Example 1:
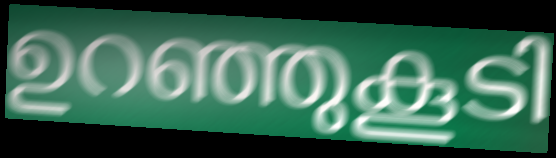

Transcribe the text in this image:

ഉറഞ്ഞുകൂടി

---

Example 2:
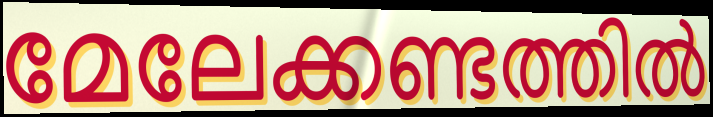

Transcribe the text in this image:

മേലേക്കണ്ടത്തിൽ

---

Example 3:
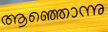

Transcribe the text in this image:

ആഞ്ഞൊന്നു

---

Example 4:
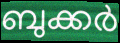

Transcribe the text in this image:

ബുക്കർ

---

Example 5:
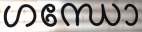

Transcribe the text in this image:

ഗന്ധോ